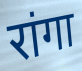
रांगा